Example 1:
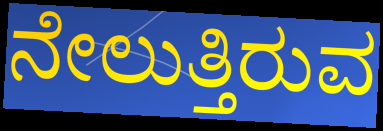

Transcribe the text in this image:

ನೇಲುತ್ತಿರುವ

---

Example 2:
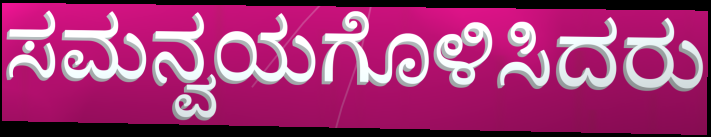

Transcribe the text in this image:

ಸಮನ್ವಯಗೊಳಿಸಿದರು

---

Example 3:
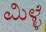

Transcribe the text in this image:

ಮಿಳ್ಳೆ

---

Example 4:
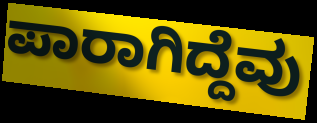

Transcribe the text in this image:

ಪಾರಾಗಿದ್ದೆವು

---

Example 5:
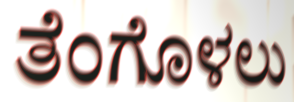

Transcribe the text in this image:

ತೆಂಗೊಳಲು